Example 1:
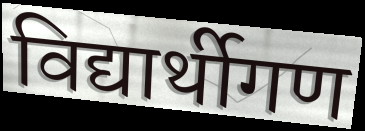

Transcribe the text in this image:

विद्यार्थीगण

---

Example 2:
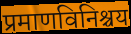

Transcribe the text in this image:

प्रमाणविनिश्चय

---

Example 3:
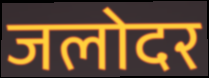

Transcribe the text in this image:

जलोदर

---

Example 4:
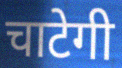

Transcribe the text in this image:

चाटेगी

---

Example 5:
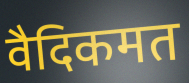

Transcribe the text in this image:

वैदिकमत